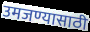
उमजण्यासाठी